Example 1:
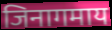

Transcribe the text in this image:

जिनागमाय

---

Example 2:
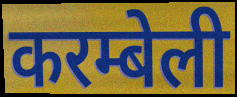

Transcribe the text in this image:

करम्बेली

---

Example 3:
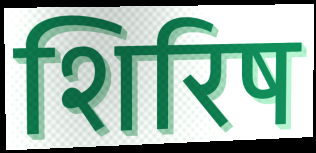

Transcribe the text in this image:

शिरिष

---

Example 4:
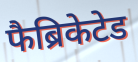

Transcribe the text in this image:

फैब्रिकेटेड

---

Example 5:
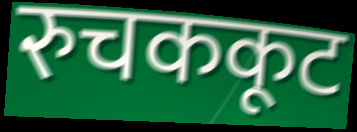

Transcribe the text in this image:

रुचककूट